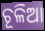
ଚୂଳିଆ